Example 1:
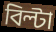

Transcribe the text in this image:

বিল্টা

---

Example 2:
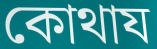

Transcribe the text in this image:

কোথায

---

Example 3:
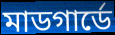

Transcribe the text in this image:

মাডগার্ডে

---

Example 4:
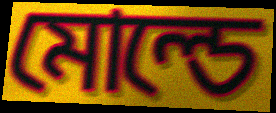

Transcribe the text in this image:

মোল্ডে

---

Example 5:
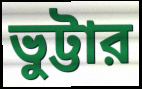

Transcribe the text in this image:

ভুট্টার